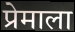
प्रेमाला